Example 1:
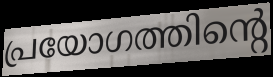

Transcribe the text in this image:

പ്രയോഗത്തിന്റെ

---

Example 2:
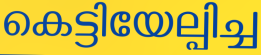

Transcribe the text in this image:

കെട്ടിയേല്പിച്ച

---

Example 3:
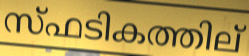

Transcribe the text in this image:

സ്ഫടികത്തില്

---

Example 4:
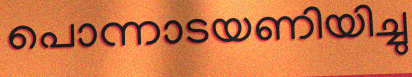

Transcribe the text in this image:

പൊന്നാടയണിയിച്ചു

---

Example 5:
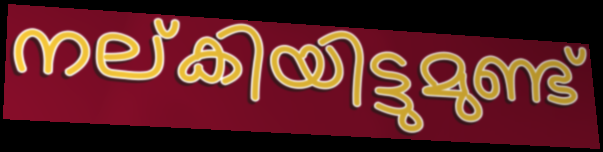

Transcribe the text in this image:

നല്കിയിട്ടുമുണ്ട്